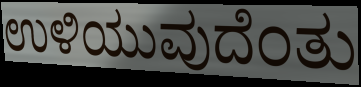
ಉಳಿಯುವುದೆಂತು